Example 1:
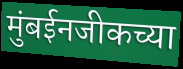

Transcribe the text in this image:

मुंबईनजीकच्या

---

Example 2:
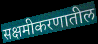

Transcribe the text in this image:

सक्षमीकरणातील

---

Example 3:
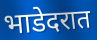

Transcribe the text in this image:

भाडेदरात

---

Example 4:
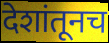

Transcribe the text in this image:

देशांतूनच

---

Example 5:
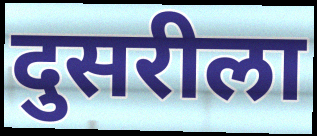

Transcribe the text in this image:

दुसरीला